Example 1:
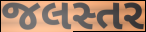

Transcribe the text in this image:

જલસ્તર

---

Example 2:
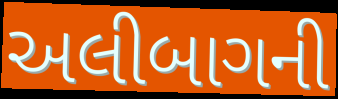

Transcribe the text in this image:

અલીબાગની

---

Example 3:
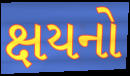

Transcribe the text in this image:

ક્ષયનો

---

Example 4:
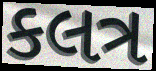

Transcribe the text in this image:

કલત્ર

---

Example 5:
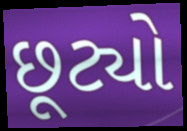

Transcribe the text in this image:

છૂટ્યો